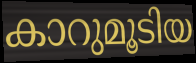
കാറുമൂടിയ